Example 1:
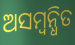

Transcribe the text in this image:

ଅସମ୍ବନ୍ଧିତ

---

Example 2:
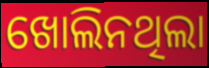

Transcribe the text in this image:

ଖୋଲିନଥିଲା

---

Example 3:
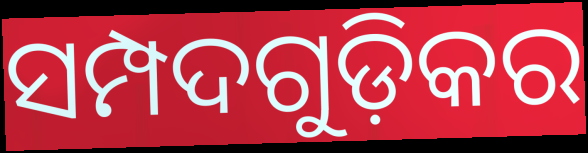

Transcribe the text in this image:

ସମ୍ପଦଗୁଡ଼ିକର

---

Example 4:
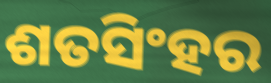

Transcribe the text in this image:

ଶତସିଂହର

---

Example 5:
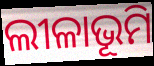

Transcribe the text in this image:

ଲୀଳାଭୂମି